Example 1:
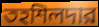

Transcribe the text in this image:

তহশিলদার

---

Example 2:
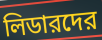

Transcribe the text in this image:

লিডারদের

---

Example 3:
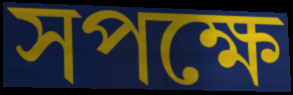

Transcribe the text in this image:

সপক্ষে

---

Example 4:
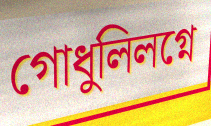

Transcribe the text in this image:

গোধুলিলগ্নে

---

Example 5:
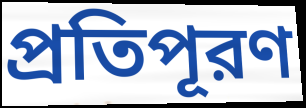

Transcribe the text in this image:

প্রতিপূরণ